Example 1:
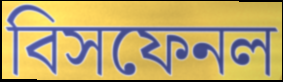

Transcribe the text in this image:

বিসফেনল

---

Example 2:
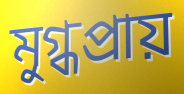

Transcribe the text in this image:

মুগ্ধপ্রায়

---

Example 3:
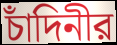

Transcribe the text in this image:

চাঁদিনীর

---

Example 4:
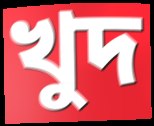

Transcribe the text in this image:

খুদ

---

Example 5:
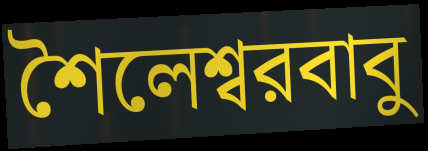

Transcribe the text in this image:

শৈলেশ্বরবাবু